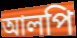
আলপি